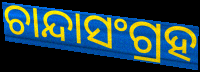
ଚାନ୍ଦାସଂଗ୍ରହ